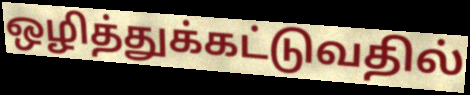
ஒழித்துக்கட்டுவதில்